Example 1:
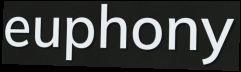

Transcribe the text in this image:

euphony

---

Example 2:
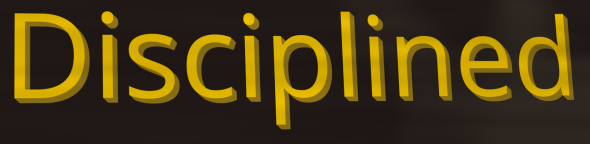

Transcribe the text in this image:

Disciplined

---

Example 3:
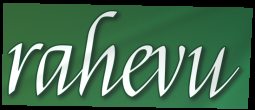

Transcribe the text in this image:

rahevu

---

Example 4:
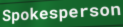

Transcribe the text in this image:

Spokesperson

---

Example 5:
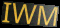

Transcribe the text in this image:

IWM